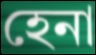
হেনা